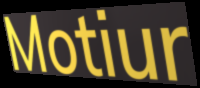
Motiur